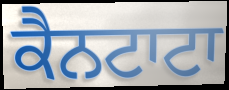
ਕੈਨਟਾਟਾ